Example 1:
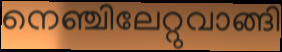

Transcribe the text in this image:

നെഞ്ചിലേറ്റുവാങ്ങി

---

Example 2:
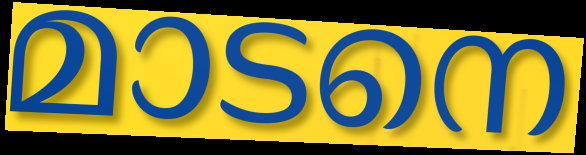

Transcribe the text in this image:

മാടനെ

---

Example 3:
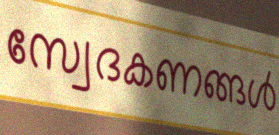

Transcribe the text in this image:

സ്വേദകണങ്ങൾ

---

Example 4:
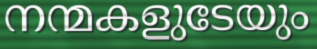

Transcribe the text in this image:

നന്മകളുടേയും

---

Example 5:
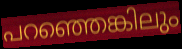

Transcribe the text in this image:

പറഞ്ഞെങ്കിലും